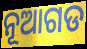
ନୂଆଗଡ